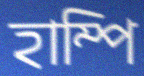
হাম্পি